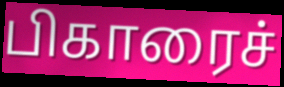
பிகாரைச்